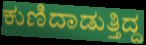
ಕುಣಿದಾಡುತ್ತಿದ್ದ